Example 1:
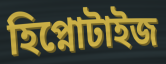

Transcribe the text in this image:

হিপ্নোটাইজ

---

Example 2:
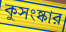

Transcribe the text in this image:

কুসংষ্কার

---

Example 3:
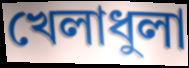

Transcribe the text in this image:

খেলাধুলা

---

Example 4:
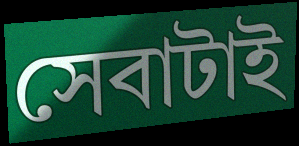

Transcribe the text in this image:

সেবাটাই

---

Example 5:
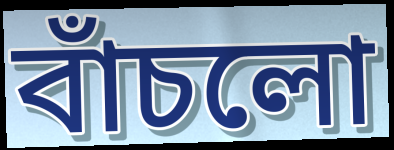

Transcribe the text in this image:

বাঁচলো